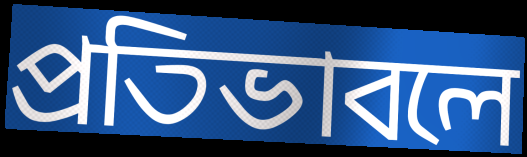
প্রতিভাবলে